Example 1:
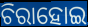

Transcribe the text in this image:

ଚିରାହୋଇ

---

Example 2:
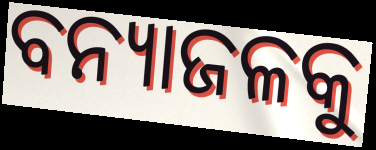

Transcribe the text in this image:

ବନ୍ୟାଜଳକୁ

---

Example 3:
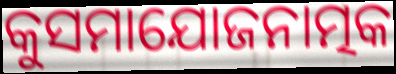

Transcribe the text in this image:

କୁସମାଯୋଜନାତ୍ମକ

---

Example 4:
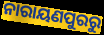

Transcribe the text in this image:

ନାରାୟଣପୁରରୁ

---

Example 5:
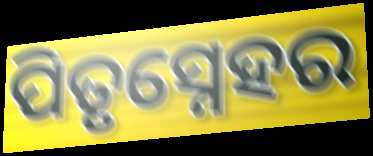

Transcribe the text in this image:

ପିତୃସ୍ନେହର